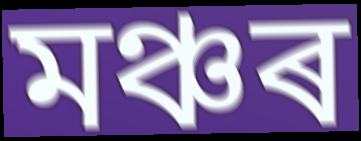
মঞ্চৰ